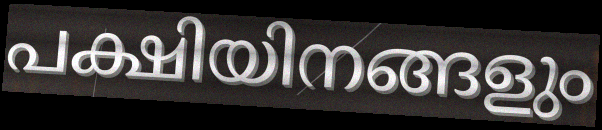
പക്ഷിയിനങ്ങളും